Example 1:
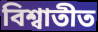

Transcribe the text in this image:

বিশ্বাতীত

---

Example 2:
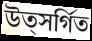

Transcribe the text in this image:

উত্সর্গিত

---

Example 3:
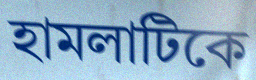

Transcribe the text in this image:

হামলাটিকে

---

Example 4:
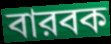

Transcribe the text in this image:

বারবক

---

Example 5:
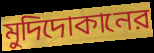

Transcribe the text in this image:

মুদিদোকানের